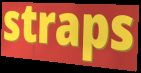
straps